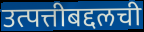
उत्पत्तीबद्दलची